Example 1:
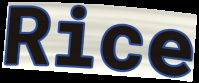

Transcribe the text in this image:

Rice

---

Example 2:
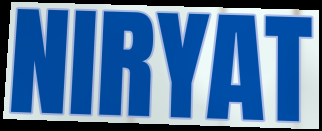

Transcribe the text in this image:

NIRYAT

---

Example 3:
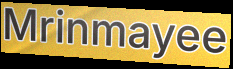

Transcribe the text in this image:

Mrinmayee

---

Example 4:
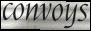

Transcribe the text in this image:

convoys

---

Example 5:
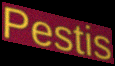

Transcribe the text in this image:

Pestis